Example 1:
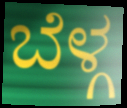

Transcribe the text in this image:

ಬೆಳ್ಗ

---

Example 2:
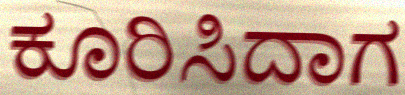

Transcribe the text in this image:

ಕೂರಿಸಿದಾಗ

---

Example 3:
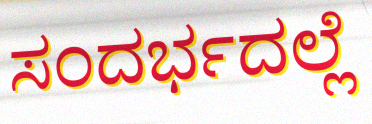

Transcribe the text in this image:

ಸಂದರ್ಭದಲ್ಲೆ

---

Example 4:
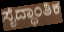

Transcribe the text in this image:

ಸೈದ್ಧಾಂತಿಕ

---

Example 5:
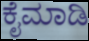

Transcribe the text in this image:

ಕೈಮಾಡಿ